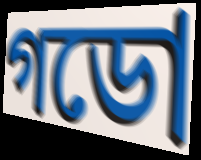
গডো